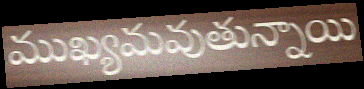
ముఖ్యమవుతున్నాయి